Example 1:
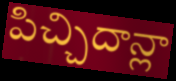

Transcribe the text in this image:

పిచ్చిదాన్లా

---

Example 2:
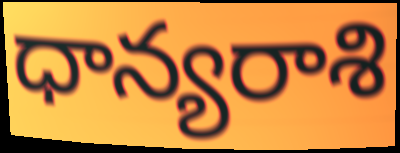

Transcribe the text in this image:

ధాన్యరాశి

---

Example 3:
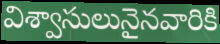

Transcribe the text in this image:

విశ్వాసులునైనవారికి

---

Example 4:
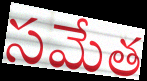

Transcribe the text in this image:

సమేత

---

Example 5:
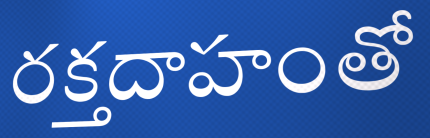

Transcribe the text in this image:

రక్తదాహంతో